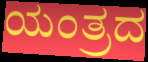
ಯಂತ್ರದ